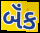
બૅંક